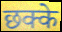
छक्के